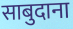
साबुदाना